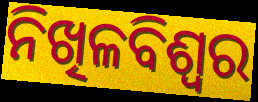
ନିଖିଳବିଶ୍ୱର